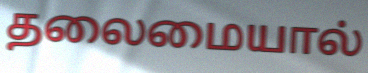
தலைமையால்